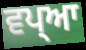
ਵਪ੍ਆ